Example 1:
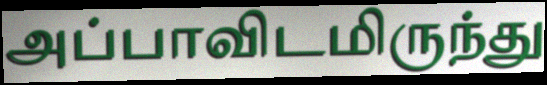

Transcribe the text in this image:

அப்பாவிடமிருந்து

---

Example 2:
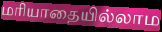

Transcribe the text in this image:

மரியாதையில்லாம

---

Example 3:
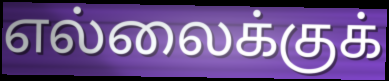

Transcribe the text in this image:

எல்லைக்குக்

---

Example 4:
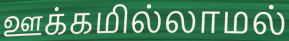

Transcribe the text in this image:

ஊக்கமில்லாமல்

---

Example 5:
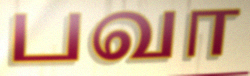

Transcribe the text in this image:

பவா